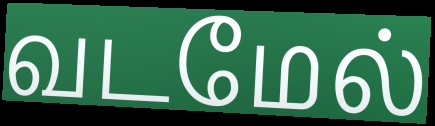
வடமேல்